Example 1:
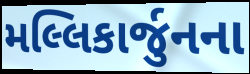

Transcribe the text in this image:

મલ્લિકાર્જુનના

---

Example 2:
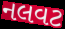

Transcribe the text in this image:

નલવટ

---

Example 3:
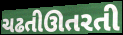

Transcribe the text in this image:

ચઢતીઊતરતી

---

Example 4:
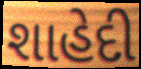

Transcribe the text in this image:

શાહેદી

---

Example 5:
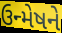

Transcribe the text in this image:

ઉન્મેષને